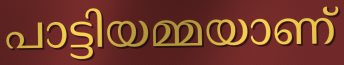
പാട്ടിയമ്മയാണ്